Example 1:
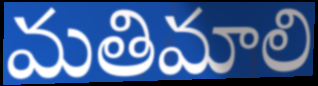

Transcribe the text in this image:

మతిమాలి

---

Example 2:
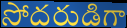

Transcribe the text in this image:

సోదరుడిగా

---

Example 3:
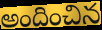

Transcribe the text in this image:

అందించిన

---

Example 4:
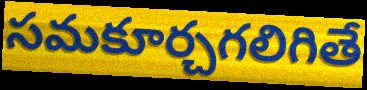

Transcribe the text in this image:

సమకూర్చగలిగితే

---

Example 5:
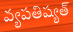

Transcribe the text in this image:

వ్యపతిష్యత్